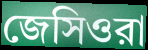
জেসিওরা